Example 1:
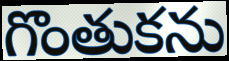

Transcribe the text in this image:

గొంతుకను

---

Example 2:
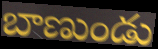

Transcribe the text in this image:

బాణుండు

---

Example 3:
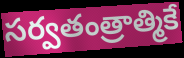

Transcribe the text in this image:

సర్వతంత్రాత్మికే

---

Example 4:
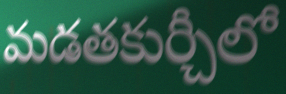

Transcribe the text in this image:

మడతకుర్చీలో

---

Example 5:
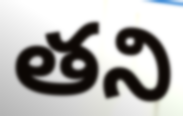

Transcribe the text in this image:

తని